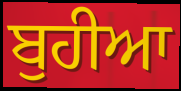
ਬੁਹੀਆ